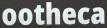
ootheca